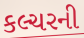
કલ્ચરની